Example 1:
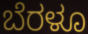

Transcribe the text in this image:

ಬೆರಳೂ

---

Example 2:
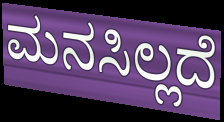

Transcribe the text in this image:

ಮನಸಿಲ್ಲದೆ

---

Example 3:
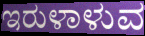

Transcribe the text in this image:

ಇರುಳಾಳುವ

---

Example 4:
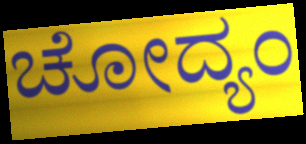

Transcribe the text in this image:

ಚೋದ್ಯಂ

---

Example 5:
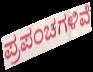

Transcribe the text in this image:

ಪ್ರಪಂಚಗಳಿವೆ